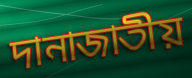
দানাজাতীয়